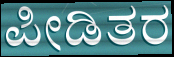
ಪೀಡಿತರ